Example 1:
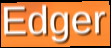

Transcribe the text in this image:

Edger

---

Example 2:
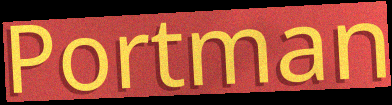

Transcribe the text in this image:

Portman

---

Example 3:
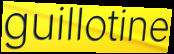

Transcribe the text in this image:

guillotine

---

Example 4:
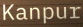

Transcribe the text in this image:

Kanpur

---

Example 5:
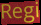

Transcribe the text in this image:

Regi